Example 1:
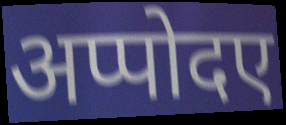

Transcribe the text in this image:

अप्पोदए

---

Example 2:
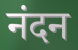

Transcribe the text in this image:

नंदन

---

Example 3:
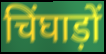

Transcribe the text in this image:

चिंघाड़ों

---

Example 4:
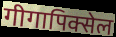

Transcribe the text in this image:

गीगापिक्सेल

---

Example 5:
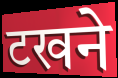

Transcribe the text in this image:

टखने